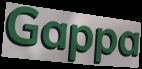
Gappa